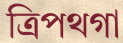
ত্রিপথগা